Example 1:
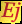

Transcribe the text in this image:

Ej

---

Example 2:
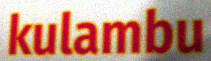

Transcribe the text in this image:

kulambu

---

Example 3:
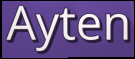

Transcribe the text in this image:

Ayten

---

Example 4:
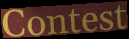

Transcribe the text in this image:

Contest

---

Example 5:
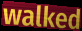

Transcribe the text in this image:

walked